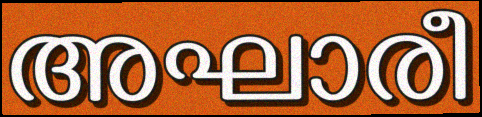
അഘാരീ